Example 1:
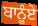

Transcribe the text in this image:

ਬਾਨੂੰਏ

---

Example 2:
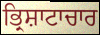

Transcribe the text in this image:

ਭ੍ਰਿਸ਼ਾਟਾਚਾਰ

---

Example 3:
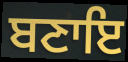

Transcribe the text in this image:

ਬਣਾਇ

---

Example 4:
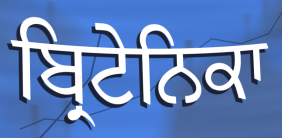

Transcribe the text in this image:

ਬ੍ਰਿਟੇਨਿਕਾ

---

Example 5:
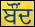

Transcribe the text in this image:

ਬੌਂਦ